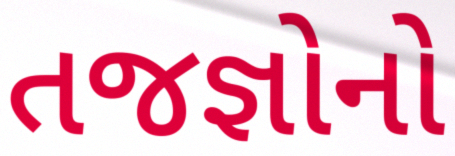
તજજ્ઞોનો